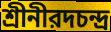
শ্রীনীরদচন্দ্র